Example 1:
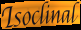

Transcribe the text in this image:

Isoclinal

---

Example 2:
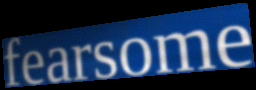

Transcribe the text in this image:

fearsome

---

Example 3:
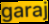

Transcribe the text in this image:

garaj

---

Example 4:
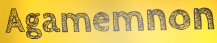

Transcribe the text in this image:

Agamemnon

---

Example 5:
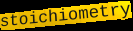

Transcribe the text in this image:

stoichiometry